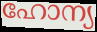
ഹോന്യ